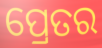
ପ୍ରେତର